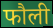
फौली